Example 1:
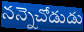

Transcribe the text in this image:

నన్నెచోడుడు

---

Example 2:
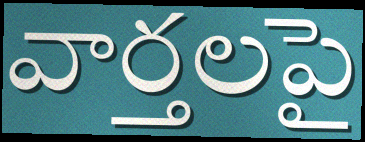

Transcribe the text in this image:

వార్తలపై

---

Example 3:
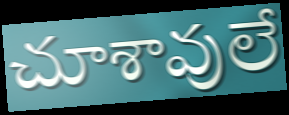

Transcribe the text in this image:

చూశావులే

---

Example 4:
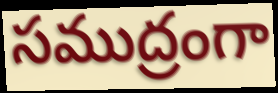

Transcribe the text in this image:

సముద్రంగా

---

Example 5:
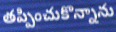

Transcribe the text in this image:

తప్పించుకొన్నాను